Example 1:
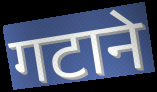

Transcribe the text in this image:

गटाने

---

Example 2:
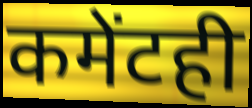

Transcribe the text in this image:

कमेंटही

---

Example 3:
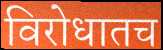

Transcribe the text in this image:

विरोधातच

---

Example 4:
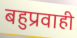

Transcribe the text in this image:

बहुप्रवाही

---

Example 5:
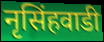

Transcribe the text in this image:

नृसिंहवाडी